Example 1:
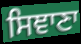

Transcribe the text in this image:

ਸਿਞਾਣਾ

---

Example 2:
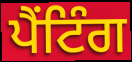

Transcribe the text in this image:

ਪੈਂਟਿੰਗ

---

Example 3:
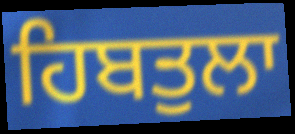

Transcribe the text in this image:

ਹਿਬਤੁਲਾ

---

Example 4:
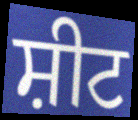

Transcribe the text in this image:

ਸ਼ੀਟ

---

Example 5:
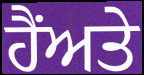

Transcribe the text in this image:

ਹੈਂਅਤੇ